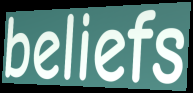
beliefs